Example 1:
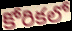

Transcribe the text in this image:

కోరికలో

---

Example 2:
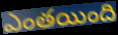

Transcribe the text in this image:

ఎంతయింది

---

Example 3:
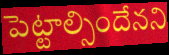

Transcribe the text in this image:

పెట్టాల్సిందేనని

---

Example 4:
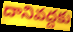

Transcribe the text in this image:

దానివద్దకు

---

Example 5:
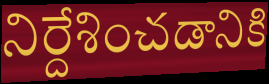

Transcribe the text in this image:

నిర్దేశించడానికి